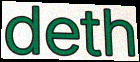
deth